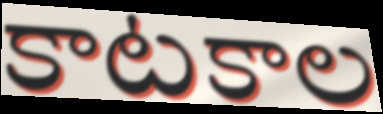
కాటకాల